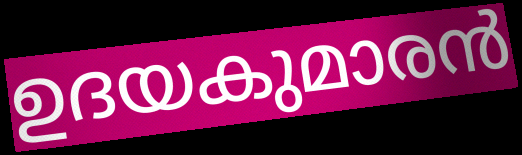
ഉദയകുമാരൻ